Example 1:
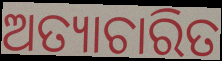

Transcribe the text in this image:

ଅତ୍ୟାଚାରିତ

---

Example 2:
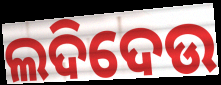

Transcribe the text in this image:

ଲଦିଦେଉ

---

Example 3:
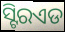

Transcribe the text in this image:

ସ୍ଟିରଏଡ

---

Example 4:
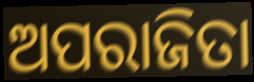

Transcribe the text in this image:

ଅପରାଜିତା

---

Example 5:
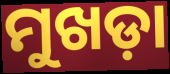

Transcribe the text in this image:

ମୁଖଡ଼ା